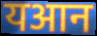
यआन